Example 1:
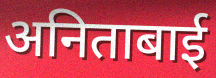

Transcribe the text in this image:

अनिताबाई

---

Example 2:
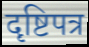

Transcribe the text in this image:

दृष्टिपत्र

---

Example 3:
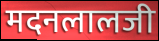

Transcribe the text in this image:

मदनलालजी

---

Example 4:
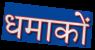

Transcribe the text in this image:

धमाकों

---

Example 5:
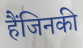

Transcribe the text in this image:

हैंजिनकी